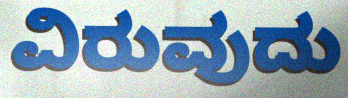
ವಿರುವುದು